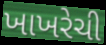
ખાખરેચી